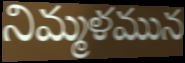
నిమ్మళమున